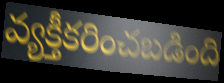
వ్యక్తీకరించబడింది